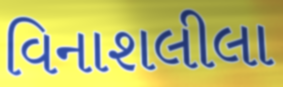
વિનાશલીલા